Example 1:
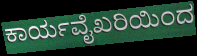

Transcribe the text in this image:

ಕಾರ್ಯವೈಖರಿಯಿಂದ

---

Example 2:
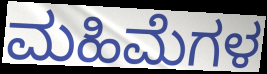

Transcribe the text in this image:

ಮಹಿಮೆಗಳ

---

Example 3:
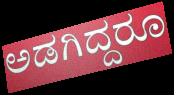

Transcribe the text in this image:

ಅಡಗಿದ್ದರೂ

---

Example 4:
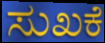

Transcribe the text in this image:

ಸುಖಕೆ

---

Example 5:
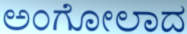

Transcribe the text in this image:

ಅಂಗೋಲಾದ